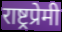
राष्ट्रप्रेमी